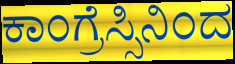
ಕಾಂಗ್ರೆಸ್ಸಿನಿಂದ